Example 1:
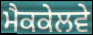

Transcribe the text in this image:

ਮੈਕਕੇਲਵੇ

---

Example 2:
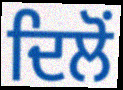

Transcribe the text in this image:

ਦਿਲੋਂ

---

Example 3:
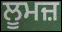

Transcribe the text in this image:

ਲੂਮਜ਼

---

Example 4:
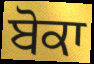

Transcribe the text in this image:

ਬੋਕਾ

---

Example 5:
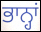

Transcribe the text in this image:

ਭਾਨ੍ਹਾਂ